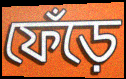
ফেঁড়ে